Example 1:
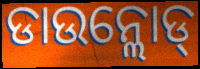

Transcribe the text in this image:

ଡାଉନ୍ଲୋଡ୍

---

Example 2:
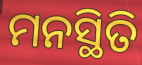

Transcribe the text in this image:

ମନସ୍ଥିତି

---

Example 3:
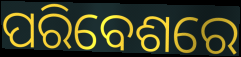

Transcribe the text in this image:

ପରିବେଶରେ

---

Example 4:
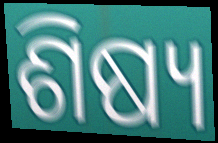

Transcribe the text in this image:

ଶିଷ୍ୟ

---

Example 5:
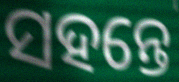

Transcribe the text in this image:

ସହନ୍ତେ